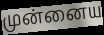
முன்னைய